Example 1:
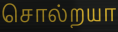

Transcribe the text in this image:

சொல்றயா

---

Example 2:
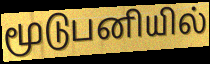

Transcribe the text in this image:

மூடுபனியில்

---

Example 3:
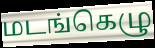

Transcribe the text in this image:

மடங்கெழு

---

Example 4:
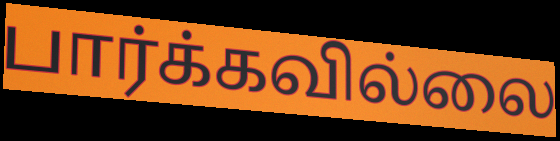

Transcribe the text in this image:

பார்க்கவில்லை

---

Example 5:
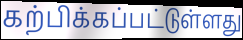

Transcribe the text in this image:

கற்பிக்கப்பட்டுள்ளது